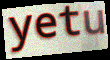
yetu